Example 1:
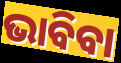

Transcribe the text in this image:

ଭାବିବା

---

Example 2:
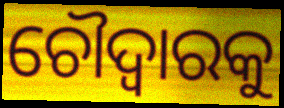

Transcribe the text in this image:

ଚୌଦ୍ୱାରକୁ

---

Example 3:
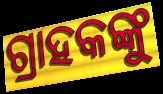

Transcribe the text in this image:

ଗ୍ରାହକଙ୍କୁ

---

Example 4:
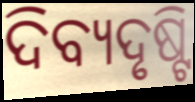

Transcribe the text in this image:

ଦିବ୍ୟଦୃଷ୍ଟି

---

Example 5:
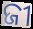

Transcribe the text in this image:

ଜୀ